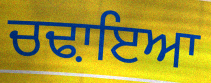
ਚਢ਼ਾਇਆ